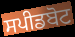
ਸਪੀਡਬੋਟ